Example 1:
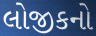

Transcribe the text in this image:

લોજીકનો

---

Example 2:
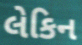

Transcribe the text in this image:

લેકિન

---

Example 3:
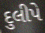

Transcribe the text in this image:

દુલીપે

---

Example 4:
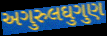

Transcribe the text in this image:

અગુરુલઘુગુણ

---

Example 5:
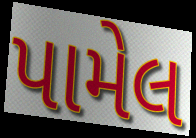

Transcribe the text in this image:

પામેલ